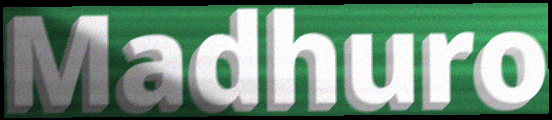
Madhuro